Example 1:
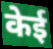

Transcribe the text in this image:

केई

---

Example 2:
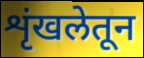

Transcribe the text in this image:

शृंखलेतून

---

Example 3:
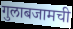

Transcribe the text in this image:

गुलाबजामची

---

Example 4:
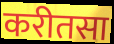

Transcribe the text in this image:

करीतसा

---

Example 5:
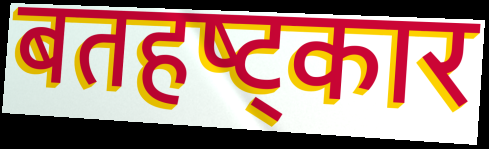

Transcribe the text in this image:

बतहष्ट्कार